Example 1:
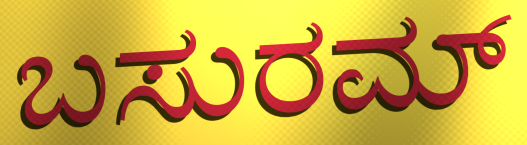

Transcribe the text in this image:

ಬಸುರಮ್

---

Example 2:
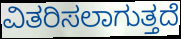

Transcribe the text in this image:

ವಿತರಿಸಲಾಗುತ್ತದೆ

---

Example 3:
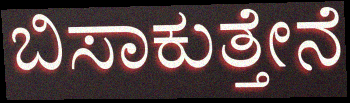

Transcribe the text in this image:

ಬಿಸಾಕುತ್ತೇನೆ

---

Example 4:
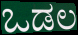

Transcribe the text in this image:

ಒಡಲ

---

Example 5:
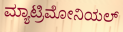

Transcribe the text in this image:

ಮ್ಯಾಟ್ರಿಮೋನಿಯಲ್